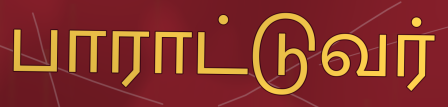
பாராட்டுவர்